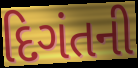
દિગંતની